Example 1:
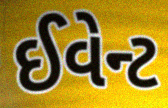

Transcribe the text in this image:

ઈવેન્ટ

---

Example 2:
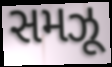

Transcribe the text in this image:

સમઝૂ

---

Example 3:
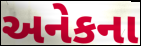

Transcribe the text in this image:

અનેકના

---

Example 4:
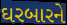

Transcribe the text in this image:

ઘરબારને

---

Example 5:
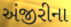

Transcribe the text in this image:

અંજીરીના